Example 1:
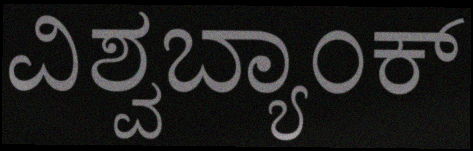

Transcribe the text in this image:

ವಿಶ್ವಬ್ಯಾಂಕ್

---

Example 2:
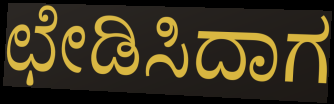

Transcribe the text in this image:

ಛೇಡಿಸಿದಾಗ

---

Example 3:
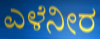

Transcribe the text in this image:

ಎಳೆನೀರ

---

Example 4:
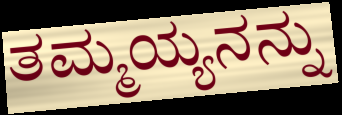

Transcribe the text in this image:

ತಮ್ಮಯ್ಯನನ್ನು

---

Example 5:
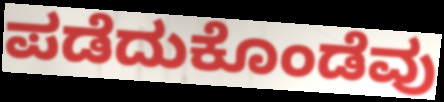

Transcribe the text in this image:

ಪಡೆದುಕೊಂಡೆವು